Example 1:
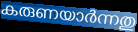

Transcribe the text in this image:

കരുണയാർന്നതു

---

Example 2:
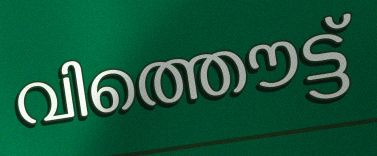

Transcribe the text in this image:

വിത്തൌട്ട്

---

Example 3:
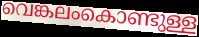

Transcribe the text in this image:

വെങ്കലംകൊണ്ടുള്ള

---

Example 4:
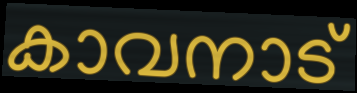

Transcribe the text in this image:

കാവനാട്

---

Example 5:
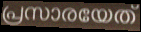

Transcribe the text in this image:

പ്രസാരയേത്